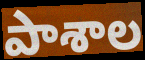
పాశాల